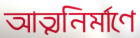
আত্মনির্মাণে